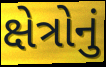
ક્ષેત્રોનું